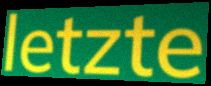
letzte